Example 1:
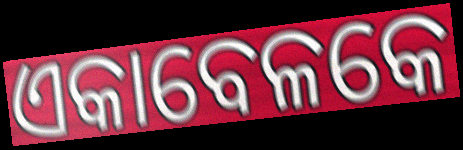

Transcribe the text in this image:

ଏକାବେଳକେ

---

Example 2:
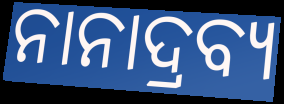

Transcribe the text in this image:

ନାନାଦ୍ରବ୍ୟ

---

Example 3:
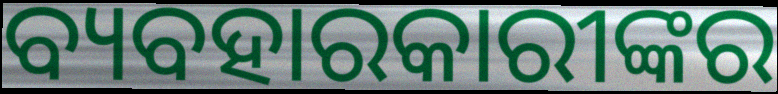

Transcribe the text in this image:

ବ୍ୟବହାରକାରୀଙ୍କର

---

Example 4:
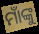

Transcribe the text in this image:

ମାଁଙ୍କୁ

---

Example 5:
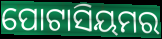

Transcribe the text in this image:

ପୋଟାସିୟମର